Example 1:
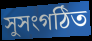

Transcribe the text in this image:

সুসংগঠিত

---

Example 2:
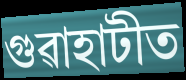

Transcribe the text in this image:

গুৱাহাটীত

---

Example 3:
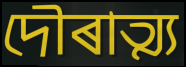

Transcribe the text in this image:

দৌৰাত্ম্য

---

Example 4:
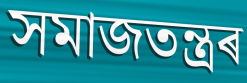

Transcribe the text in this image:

সমাজতন্ত্ৰৰ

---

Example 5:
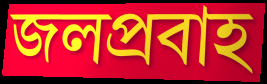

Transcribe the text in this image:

জলপ্ৰবাহ